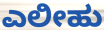
ಎಲೀಹು